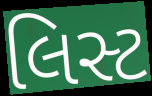
લિસ્ટ